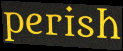
perish